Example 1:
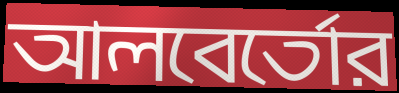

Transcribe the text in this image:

আলবের্তোর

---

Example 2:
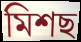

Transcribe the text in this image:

মিশছ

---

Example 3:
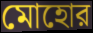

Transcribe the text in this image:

মোহোর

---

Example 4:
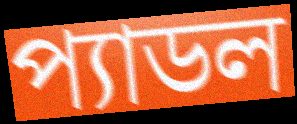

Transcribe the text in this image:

প্যাডল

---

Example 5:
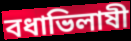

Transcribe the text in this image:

বধাভিলাষী